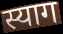
स्याग